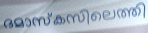
ദമാസ്കസിലെത്തി